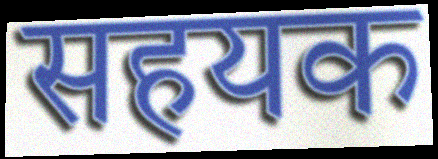
सहयक